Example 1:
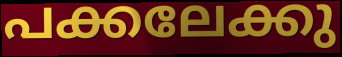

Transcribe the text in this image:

പക്കലേക്കു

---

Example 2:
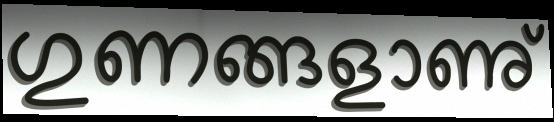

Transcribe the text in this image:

ഗുണങ്ങളാണു്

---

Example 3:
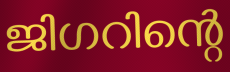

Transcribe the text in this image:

ജിഗറിന്റെ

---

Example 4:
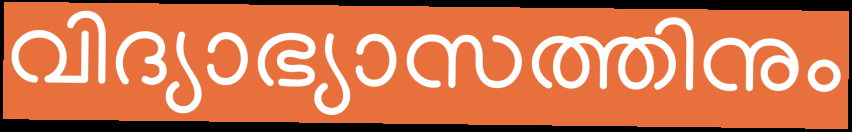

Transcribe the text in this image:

വിദ്യാഭ്യാസത്തിനും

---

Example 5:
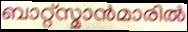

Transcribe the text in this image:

ബാറ്റ്സ്മാൻമാരിൽ